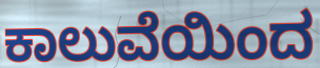
ಕಾಲುವೆಯಿಂದ